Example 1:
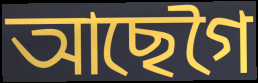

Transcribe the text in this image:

আছেগৈ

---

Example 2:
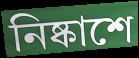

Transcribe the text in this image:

নিষ্কাশে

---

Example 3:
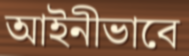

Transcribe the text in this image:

আইনীভাবে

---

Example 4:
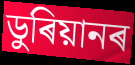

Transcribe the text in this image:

ডুৰিয়ানৰ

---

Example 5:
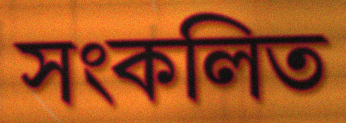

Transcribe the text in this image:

সংকলিত